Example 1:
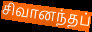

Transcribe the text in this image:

சிவானந்தப்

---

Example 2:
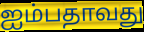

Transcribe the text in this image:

ஐம்பதாவது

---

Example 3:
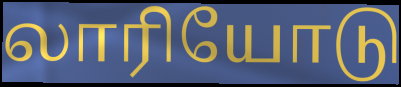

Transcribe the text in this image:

லாரியோடு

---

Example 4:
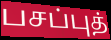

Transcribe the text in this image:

பசப்புத்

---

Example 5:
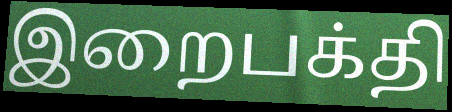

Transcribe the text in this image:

இறைபக்தி